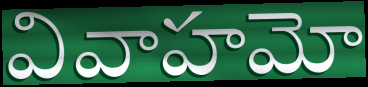
వివాహమో